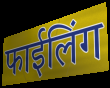
फाईलिंग